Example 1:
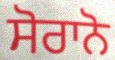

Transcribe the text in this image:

ਸੋਰਾਨੋ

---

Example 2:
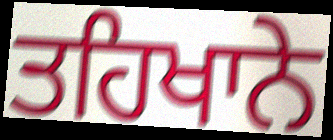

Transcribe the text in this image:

ਤਹਿਖਾਨੇ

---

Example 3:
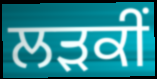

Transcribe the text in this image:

ਲੜਕੀਂ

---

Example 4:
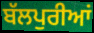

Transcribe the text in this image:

ਬੱਲਪੁਰੀਆਂ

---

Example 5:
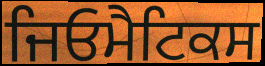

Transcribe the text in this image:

ਜਿਓਮੈਟਿਕਸ